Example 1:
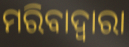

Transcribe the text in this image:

ମରିବାଦ୍ୱାରା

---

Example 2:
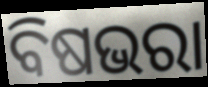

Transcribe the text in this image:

ବିଷଭରା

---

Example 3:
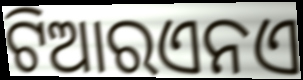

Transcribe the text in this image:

ଟିଆରଏନଏ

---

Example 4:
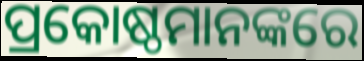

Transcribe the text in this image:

ପ୍ରକୋଷ୍ଠମାନଙ୍କରେ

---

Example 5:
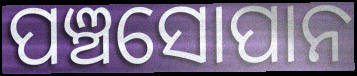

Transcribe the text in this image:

ପଞ୍ଚସୋପାନ